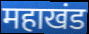
महाखंड